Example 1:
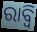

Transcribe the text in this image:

ରାବ୍ବି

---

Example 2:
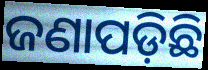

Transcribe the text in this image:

ଜଣାପଡ଼ିଛି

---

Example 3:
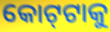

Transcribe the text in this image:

କୋଟ୍‌ଟାକୁ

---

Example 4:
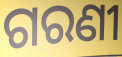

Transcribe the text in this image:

ଗରଣୀ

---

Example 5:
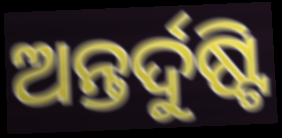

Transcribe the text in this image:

ଅନ୍ତର୍ଦୁଷ୍ଟି